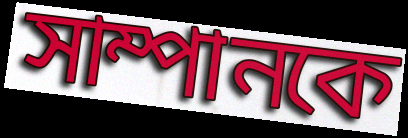
সাম্পানকে